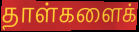
தாள்களைக்